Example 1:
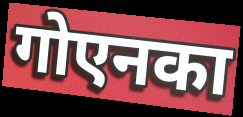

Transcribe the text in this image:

गोएनका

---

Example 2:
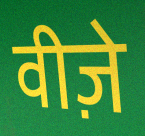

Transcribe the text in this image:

वीज़े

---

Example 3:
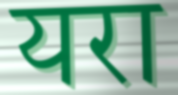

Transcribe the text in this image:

यरा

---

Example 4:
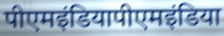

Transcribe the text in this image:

पीएमइंडियापीएमइंडिया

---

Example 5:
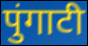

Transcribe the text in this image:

पुंगाटी